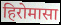
हिरोमासा